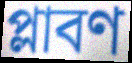
প্লাবণ